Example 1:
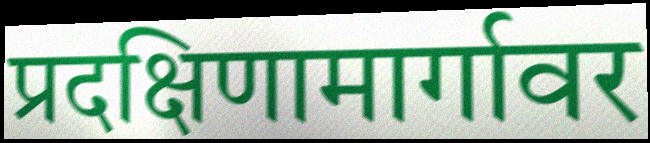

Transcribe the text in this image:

प्रदक्षिणामार्गावर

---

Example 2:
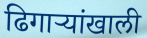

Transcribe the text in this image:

ढिगाऱ्यांखाली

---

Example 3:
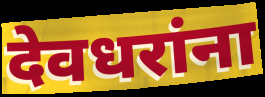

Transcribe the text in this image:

देवधरांना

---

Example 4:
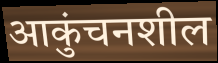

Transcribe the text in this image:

आकुंचनशील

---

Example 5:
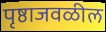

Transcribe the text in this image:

पृष्ठाजवळील